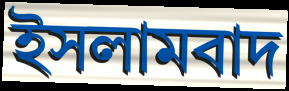
ইসলামবাদ